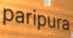
paripura